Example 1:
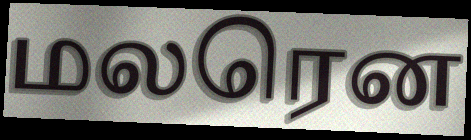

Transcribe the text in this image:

மலரென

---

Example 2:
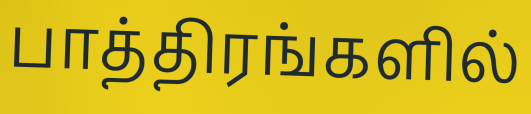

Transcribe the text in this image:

பாத்திரங்களில்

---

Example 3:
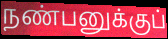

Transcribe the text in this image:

நண்பனுக்குப்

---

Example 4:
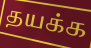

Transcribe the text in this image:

தயக்க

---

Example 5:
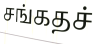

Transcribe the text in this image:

சங்கதச்